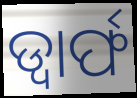
ଡ୍ୱାର୍ଫ